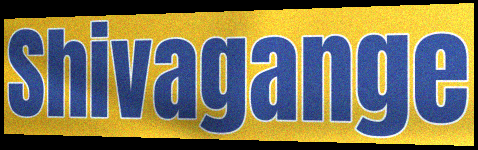
Shivagange